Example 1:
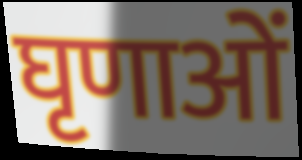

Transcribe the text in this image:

घृणाओं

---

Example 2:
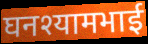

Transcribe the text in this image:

घनश्यामभाई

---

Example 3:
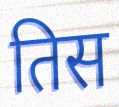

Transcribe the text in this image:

तिस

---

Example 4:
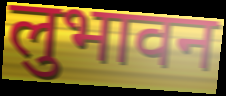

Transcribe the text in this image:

लुभावन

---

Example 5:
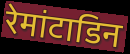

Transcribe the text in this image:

रेमांटाडिन